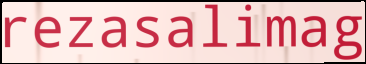
rezasalimag